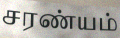
சரண்யம்